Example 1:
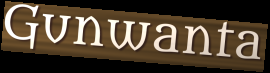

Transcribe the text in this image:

Gunwanta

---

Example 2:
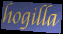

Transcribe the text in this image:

hogilla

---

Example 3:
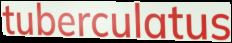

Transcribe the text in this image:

tuberculatus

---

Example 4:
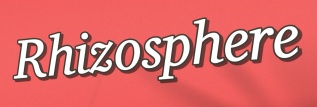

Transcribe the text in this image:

Rhizosphere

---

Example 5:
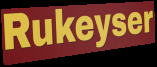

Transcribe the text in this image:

Rukeyser